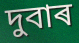
দুবাৰ